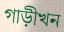
গাড়ীখন